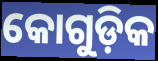
କୋଗୁଡ଼ିକ